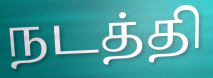
நடத்தி